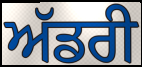
ਅੱਡਰੀ